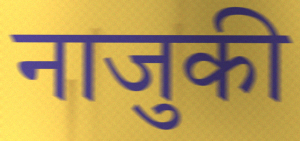
नाजुकी